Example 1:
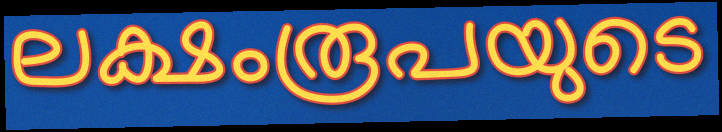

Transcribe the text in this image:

ലക്ഷംരൂപയുടെ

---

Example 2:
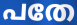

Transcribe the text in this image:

പതേ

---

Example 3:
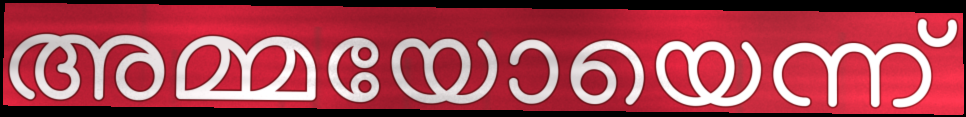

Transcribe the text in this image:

അമ്മയോയെന്ന്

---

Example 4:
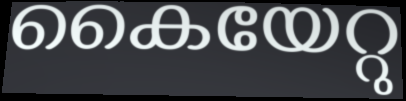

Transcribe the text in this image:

കൈയേറ്റു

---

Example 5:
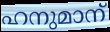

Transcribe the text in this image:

ഹനുമാന്